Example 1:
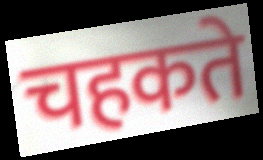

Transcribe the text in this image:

चहकते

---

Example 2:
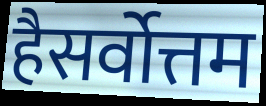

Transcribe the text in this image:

हैसर्वोत्तम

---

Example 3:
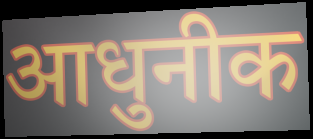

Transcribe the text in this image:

आधुनीक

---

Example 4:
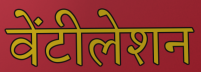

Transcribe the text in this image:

वेंटीलेशन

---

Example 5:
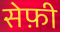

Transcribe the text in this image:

सेफ़ी